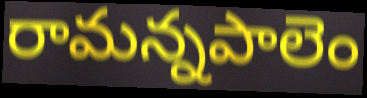
రామన్నపాలెం